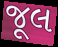
જૂલ